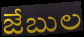
జేబుల